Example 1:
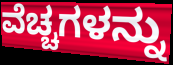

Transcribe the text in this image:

ವೆಚ್ಚಗಳನ್ನು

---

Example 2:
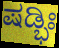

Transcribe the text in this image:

ಷಡ್ಭಿಃ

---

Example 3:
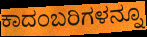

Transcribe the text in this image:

ಕಾದಂಬರಿಗಳನ್ನೂ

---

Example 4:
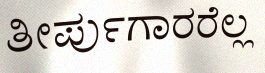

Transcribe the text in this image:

ತೀರ್ಪುಗಾರರೆಲ್ಲ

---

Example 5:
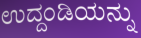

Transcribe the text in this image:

ಉದ್ದಂಡಿಯನ್ನು